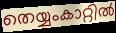
തെയ്യംകാറ്റിൽ